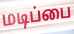
மடிப்பை